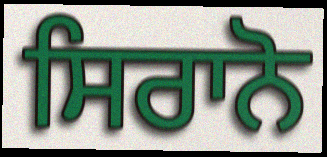
ਸਿਰਾਨੋ